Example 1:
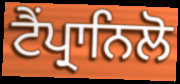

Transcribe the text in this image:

ਟੈਂਪ੍ਰਾਨਿਲੋ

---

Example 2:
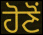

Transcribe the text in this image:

ਹੋਣੋਂ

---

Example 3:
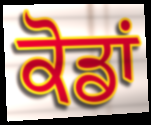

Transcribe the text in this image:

ਕੋਡਾਂ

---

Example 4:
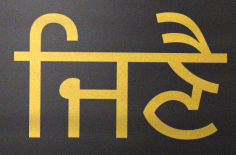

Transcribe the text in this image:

ਜਿਣੈ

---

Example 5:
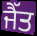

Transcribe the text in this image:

ਜੈੱਤ